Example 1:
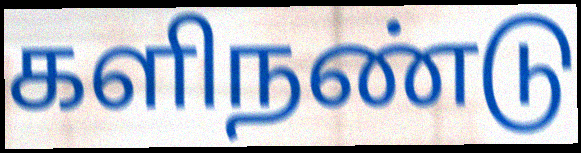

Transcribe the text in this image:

களிநண்டு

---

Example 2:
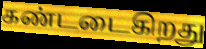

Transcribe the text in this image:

கண்டடைகிறது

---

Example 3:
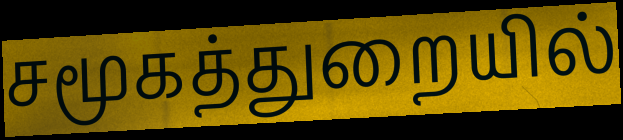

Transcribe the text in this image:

சமூகத்துறையில்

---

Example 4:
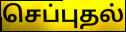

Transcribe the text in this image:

செப்புதல்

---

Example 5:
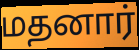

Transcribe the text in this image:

மதனார்